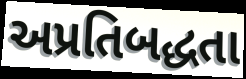
અપ્રતિબદ્ધતા